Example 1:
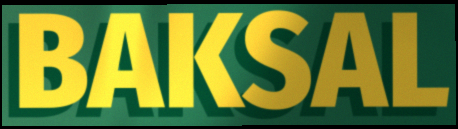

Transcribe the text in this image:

BAKSAL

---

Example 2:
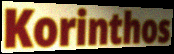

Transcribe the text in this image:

Korinthos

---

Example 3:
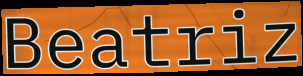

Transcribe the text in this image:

Beatriz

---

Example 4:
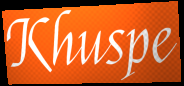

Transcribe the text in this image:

Khuspe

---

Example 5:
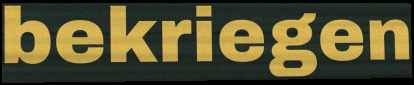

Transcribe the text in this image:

bekriegen